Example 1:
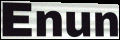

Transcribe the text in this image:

Enun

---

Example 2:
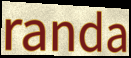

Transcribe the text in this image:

randa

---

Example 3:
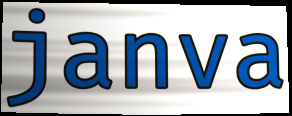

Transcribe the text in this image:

janva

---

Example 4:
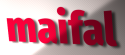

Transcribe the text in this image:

maifal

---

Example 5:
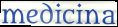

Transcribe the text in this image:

medicina